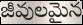
జీవులమైన